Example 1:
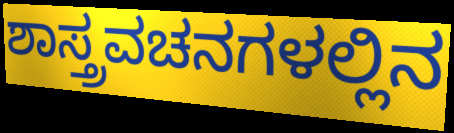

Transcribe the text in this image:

ಶಾಸ್ತ್ರವಚನಗಳಲ್ಲಿನ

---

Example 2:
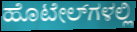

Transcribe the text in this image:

ಹೊಟೇಲ್‌ಗಳಲ್ಲಿ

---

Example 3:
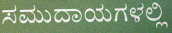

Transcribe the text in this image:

ಸಮುದಾಯಗಳಲ್ಲಿ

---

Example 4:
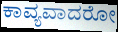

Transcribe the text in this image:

ಕಾವ್ಯವಾದರೋ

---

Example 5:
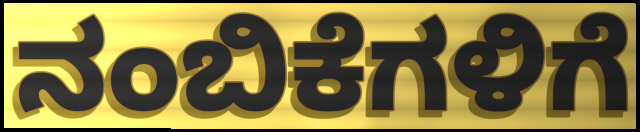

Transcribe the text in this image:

ನಂಬಿಕೆಗಳಿಗೆ